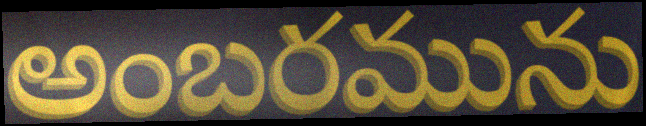
అంబరమును